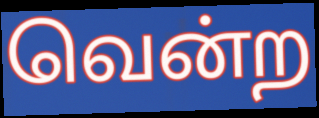
வென்ற